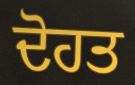
ਦੋਹਤ